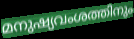
മനുഷ്യവംശത്തിനും